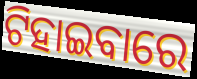
ଟିହାଇବାରେ